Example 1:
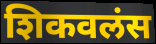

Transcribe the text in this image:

शिकवलंस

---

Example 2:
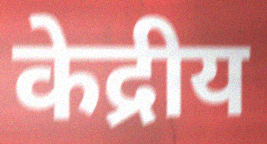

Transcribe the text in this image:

केद्रीय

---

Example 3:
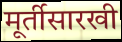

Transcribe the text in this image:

मूर्तीसारखी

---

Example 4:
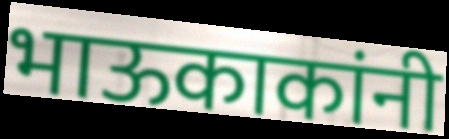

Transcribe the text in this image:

भाऊकाकांनी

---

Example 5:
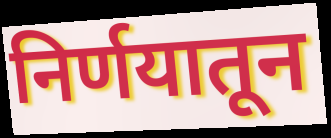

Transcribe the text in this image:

निर्णयातून